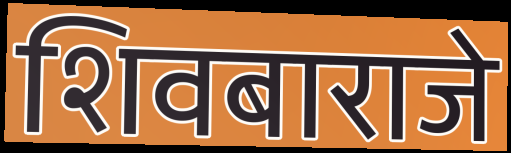
शिवबाराजे